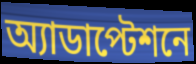
অ্যাডাপ্টেশনে